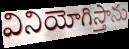
వినియోగిస్తాను